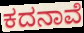
ಕದನಾವೆ